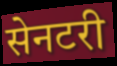
सेनटरी